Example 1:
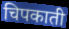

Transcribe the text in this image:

चिपकाती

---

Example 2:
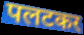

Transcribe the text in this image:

पलटकर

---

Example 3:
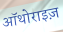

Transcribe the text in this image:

ऑथोराइज़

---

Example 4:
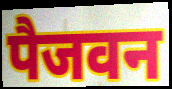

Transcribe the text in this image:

पैजवन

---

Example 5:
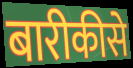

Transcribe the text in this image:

बारीकीसे